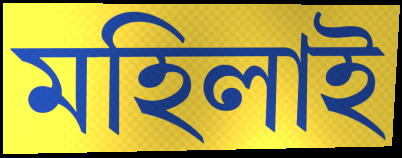
মহিলাই